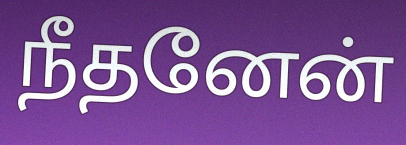
நீதனேன்